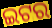
ଇଟର